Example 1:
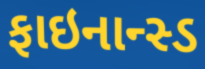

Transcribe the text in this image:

ફાઇનાન્સ્ડ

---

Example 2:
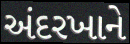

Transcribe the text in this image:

અંદરખાને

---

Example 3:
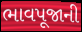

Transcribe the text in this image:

ભાવપૂજાની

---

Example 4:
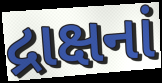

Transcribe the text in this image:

દ્રાક્ષનાં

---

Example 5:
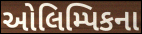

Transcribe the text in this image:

ઓલિમ્પિકના